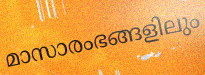
മാസാരംഭങ്ങളിലും